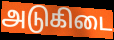
அடுகிடை